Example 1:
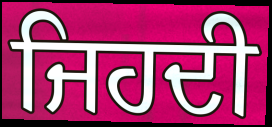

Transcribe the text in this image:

ਜਿਹਦੀ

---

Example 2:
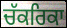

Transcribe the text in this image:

ਚੱਕਰਿਕਾ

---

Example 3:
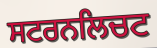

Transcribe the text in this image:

ਸਟਰਨਲਿਚਟ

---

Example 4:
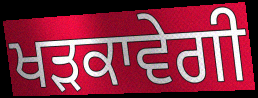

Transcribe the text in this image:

ਖੜਕਾਵੇਗੀ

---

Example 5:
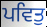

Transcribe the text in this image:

ਪਵਿਤੁ